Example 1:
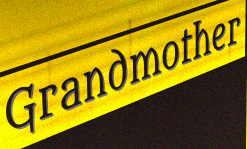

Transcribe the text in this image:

Grandmother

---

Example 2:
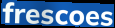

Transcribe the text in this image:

frescoes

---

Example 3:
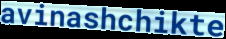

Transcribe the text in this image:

avinashchikte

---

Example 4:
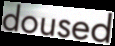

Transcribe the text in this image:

doused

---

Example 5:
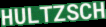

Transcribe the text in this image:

HULTZSCH